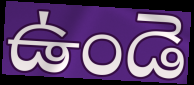
ఉండె